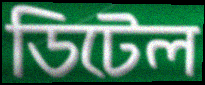
ডিটেল